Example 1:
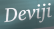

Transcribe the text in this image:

Deviji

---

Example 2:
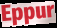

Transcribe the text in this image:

Eppur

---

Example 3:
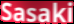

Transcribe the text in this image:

Sasaki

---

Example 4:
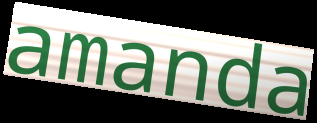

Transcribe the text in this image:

amanda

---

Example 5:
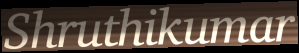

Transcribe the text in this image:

Shruthikumar